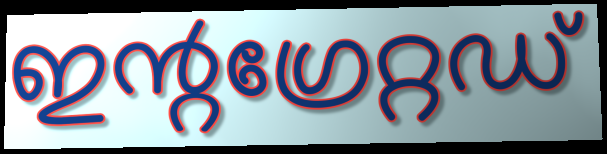
ഇന്റഗ്രേറ്റഡ്